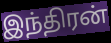
இந்திரன்